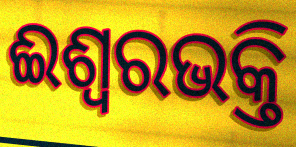
ଈଶ୍ୱରଭକ୍ତି